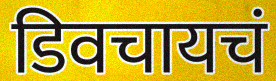
डिवचायचं